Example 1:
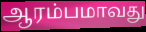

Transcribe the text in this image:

ஆரம்பமாவது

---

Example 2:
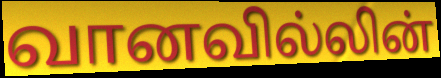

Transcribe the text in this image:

வானவில்லின்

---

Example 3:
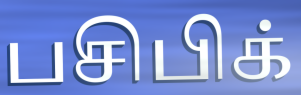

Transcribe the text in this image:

பசிபிக்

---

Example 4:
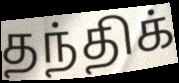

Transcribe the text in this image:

தந்திக்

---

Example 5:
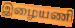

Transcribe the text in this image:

இழையணி